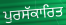
ਪੁਰਸੱਕਾਰਿਤ